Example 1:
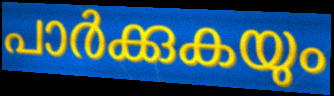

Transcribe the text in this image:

പാർക്കുകയും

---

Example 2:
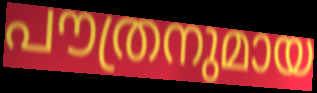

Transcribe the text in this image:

പൗത്രനുമായ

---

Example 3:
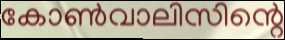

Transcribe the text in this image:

കോൺവാലിസിന്റെ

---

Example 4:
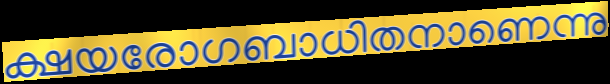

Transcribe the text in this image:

ക്ഷയരോഗബാധിതനാണെന്നു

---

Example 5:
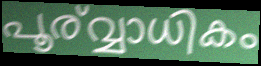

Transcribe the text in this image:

പൂര്വ്വാധികം